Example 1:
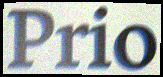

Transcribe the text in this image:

Prio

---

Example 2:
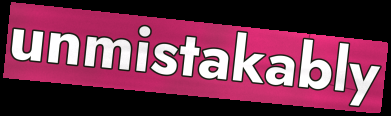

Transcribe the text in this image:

unmistakably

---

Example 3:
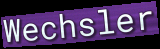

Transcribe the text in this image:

Wechsler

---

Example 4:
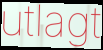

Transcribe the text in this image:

utlagt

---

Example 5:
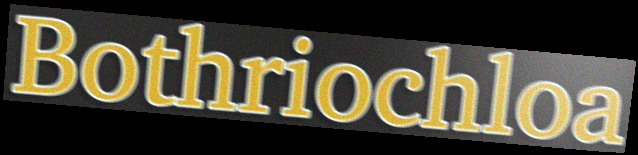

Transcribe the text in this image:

Bothriochloa